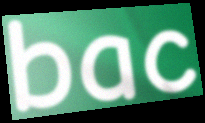
bac